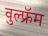
वुल्फ्रॅम